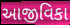
આજીવિકા